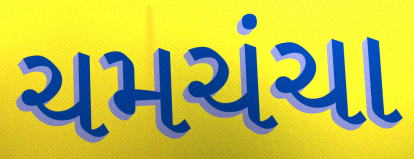
ચમચંચા